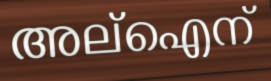
അല്ഐന്